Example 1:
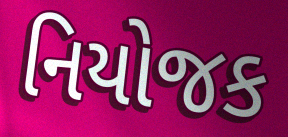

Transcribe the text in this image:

નિયોજક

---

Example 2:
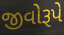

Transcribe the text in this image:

જીવોરૂપે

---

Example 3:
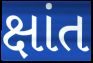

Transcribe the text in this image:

ક્ષાંત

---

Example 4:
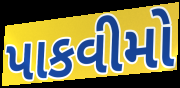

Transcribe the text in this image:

પાકવીમો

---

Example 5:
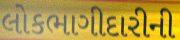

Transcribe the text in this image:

લોકભાગીદારીની